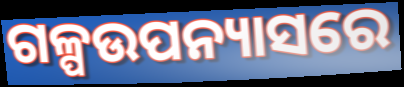
ଗଳ୍ପଉପନ୍ୟାସରେ